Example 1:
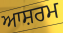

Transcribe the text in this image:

ਆਸ਼ਰਮ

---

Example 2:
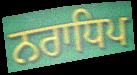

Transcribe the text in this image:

ਨਰਾਧਿਪ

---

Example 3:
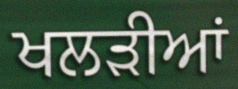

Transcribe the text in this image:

ਖਲੜੀਆਂ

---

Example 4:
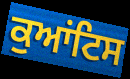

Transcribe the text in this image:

ਕੁਆਂਟਿਸ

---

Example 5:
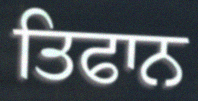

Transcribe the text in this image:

ਤਿਫਾਨ